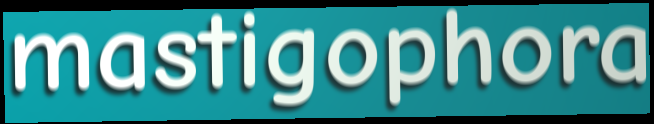
mastigophora